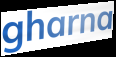
gharna